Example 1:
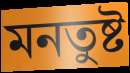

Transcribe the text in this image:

মনতুষ্ট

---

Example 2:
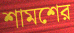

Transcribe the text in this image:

শামশের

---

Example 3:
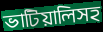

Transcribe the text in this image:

ভাটিয়ালিসহ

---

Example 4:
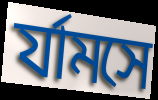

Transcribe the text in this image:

র্যামসে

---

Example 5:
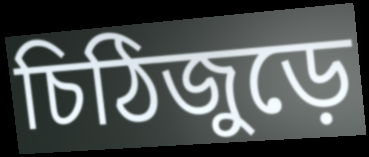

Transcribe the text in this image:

চিঠিজুড়ে